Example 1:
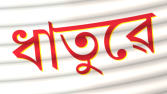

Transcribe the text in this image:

ধাতুৱে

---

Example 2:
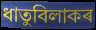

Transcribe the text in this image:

ধাতুবিলাকৰ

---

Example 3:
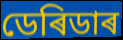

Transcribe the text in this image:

ডেৰিডাৰ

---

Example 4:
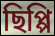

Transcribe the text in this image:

ছিপ্পি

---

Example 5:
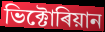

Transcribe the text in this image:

ভিক্টোৰিয়ান